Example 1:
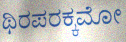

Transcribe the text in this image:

ಥಿರಪರಕ್ಕಮೋ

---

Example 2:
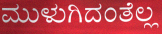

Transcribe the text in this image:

ಮುಳುಗಿದಂತೆಲ್ಲ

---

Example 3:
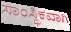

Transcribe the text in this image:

ಸಾಂಸ್ಥಿಕವಾಗಿ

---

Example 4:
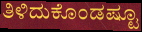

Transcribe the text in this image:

ತಿಳಿದುಕೊಂಡಷ್ಟೂ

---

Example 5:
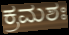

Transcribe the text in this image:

ಕ್ರಮಶಃ